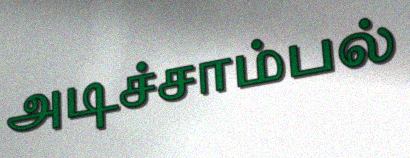
அடிச்சாம்பல்